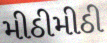
મીઠીમીઠી